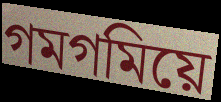
গমগমিয়ে